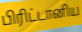
பிரிட்டானிய